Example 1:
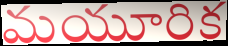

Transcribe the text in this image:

మయూరిక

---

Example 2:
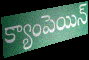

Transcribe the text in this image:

క్యాంపెయిన్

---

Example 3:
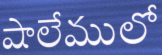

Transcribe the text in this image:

షాలేములో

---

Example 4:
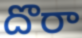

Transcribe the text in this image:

దొరా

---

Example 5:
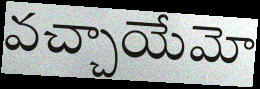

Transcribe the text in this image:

వచ్చాయేమో